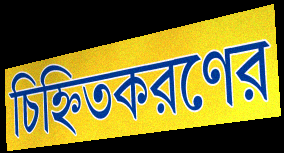
চিহ্নিতকরণের